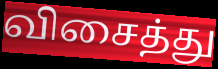
விசைத்து